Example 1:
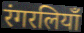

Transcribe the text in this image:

रंगरलियाँ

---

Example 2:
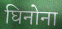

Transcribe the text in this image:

घिनोना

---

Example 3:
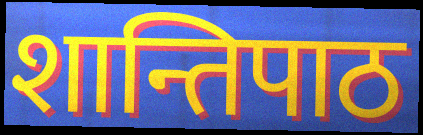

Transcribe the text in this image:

शान्तिपाठ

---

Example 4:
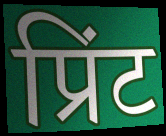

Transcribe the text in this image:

प्रिंट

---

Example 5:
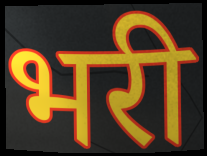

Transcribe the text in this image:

भरी